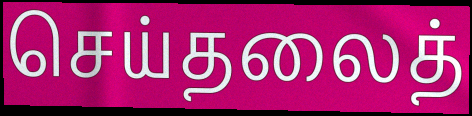
செய்தலைத்